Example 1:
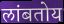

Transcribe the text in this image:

लांबतोय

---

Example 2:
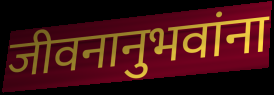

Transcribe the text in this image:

जीवनानुभवांना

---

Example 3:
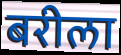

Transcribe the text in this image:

बरीला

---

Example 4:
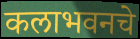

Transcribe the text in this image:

कलाभवनचे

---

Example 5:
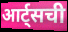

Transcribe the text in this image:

आर्ट्सची